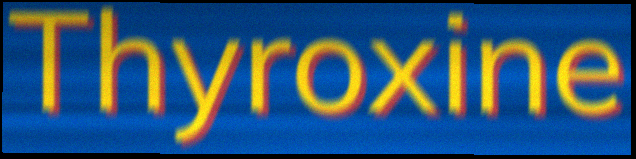
Thyroxine